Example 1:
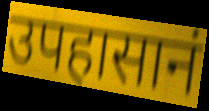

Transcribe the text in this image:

उपहासानं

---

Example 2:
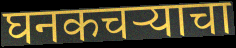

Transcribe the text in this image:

घनकचऱ्याचा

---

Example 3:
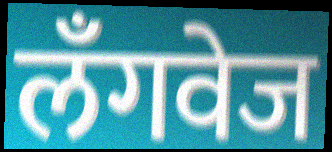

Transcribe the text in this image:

लॅंगवेज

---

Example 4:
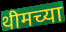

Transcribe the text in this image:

थीमच्या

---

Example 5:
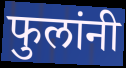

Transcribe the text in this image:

फुलांनी